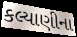
કલ્યાણીના